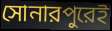
সোনারপুরেই